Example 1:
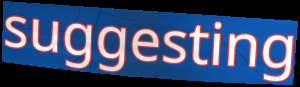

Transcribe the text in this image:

suggesting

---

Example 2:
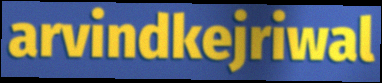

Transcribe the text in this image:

arvindkejriwal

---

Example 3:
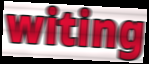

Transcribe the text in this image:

witing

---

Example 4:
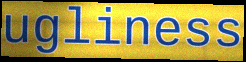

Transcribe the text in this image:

ugliness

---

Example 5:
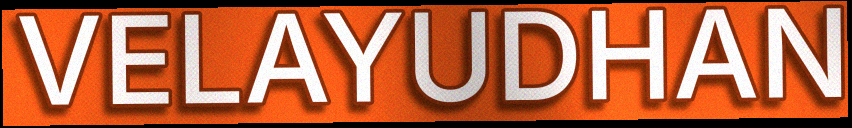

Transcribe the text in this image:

VELAYUDHAN